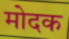
मोदक